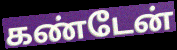
கண்டேன்